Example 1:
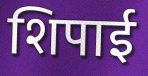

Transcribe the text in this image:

शिपाई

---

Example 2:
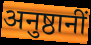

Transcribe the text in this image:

अनुष्ठानीं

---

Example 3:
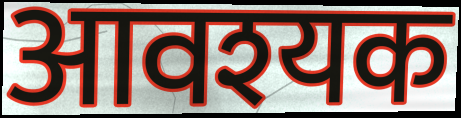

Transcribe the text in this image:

आवश्‍यक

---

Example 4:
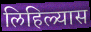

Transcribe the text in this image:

लिहिल्यास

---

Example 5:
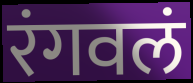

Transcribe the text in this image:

रंगवलं